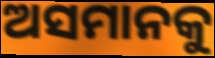
ଅସମାନକୁ